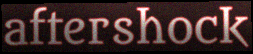
aftershock